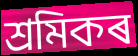
শ্ৰমিকৰ